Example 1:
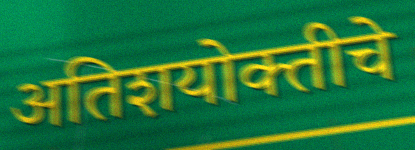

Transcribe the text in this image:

अतिशयोक्तीचे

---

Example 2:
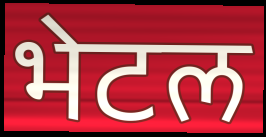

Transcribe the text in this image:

भेटल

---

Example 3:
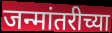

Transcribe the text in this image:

जन्मांतरीच्या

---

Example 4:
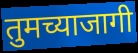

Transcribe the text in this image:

तुमच्याजागी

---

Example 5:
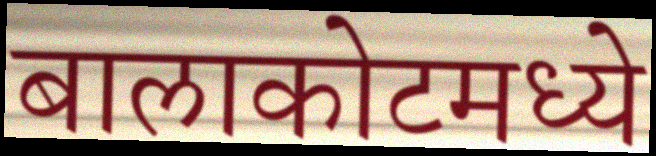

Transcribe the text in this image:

बालाकोटमध्ये